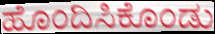
ಹೊಂದಿಸಿಕೊಂಡು